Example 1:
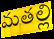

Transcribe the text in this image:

మతల్లి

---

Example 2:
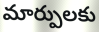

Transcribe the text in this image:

మార్పులకు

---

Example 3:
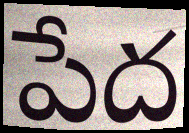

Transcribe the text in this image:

పేద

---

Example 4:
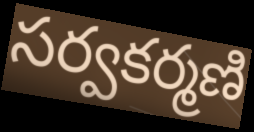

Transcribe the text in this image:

సర్వకర్మణి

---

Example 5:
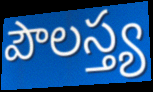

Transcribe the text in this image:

పౌలస్త్య